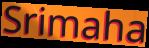
Srimaha